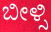
ಬೀಳ್ಸಿ